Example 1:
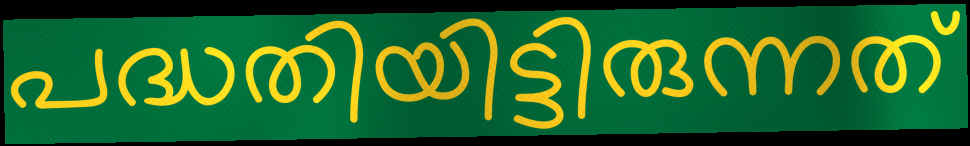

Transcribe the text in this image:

പദ്ധതിയിട്ടിരുന്നത്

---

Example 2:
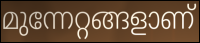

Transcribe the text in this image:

മുന്നേറ്റങ്ങളാണ്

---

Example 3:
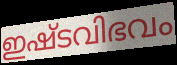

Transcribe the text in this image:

ഇഷ്ടവിഭവം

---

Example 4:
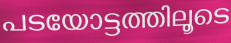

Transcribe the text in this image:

പടയോട്ടത്തിലൂടെ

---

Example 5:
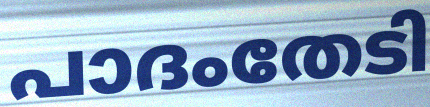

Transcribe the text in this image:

പാദംതേടി